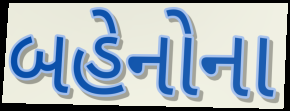
બહેનોના